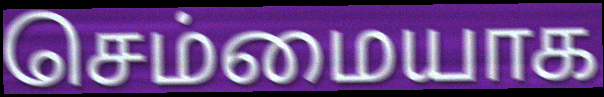
செம்மையாக